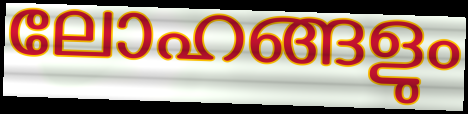
ലോഹങ്ങളും